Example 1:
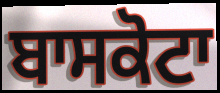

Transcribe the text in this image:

ਬਾਸਕੋਟਾ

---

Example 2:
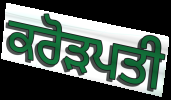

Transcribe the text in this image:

ਕਰੋੜਪਤੀ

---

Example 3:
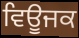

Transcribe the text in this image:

ਵਿਊਜਕ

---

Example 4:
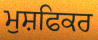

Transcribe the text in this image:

ਮੁਸ਼ਫਿਕਰ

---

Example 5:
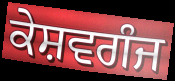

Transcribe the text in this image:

ਕੇਸ਼ਵਗੰਜ